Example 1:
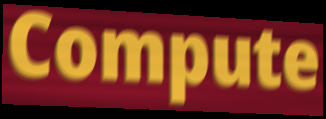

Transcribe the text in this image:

Compute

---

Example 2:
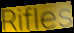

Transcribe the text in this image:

Rifles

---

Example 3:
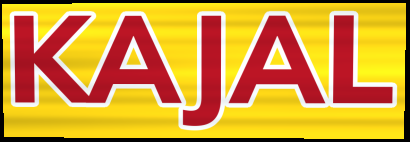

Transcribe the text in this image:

KAJAL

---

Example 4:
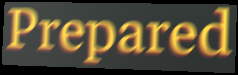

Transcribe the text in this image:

Prepared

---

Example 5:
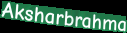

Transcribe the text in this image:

Aksharbrahma